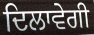
ਦਿਲਾਵੇਗੀ